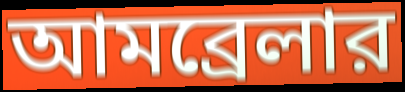
আমব্রেলার